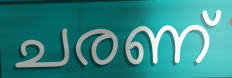
ചരണ്